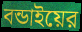
বন্ডাইয়ের